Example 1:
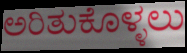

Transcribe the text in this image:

ಅರಿತುಕೊಳ್ಳಲು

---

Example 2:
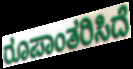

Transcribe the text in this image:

ರೂಪಾಂತರಿಸಿದೆ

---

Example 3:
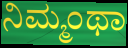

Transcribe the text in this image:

ನಿಮ್ಮಂಥಾ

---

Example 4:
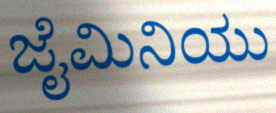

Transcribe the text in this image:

ಜೈಮಿನಿಯು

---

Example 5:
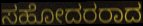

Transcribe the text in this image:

ಸಹೋದರರಾದ